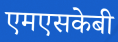
एमएसकेबी